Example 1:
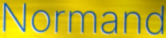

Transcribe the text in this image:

Normand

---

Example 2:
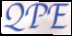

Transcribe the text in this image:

QPE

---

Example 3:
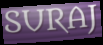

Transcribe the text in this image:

SURAJ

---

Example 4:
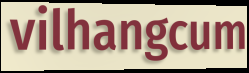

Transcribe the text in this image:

vilhangcum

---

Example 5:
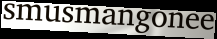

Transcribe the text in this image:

smusmangonee